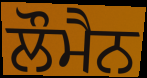
ਲੌਮੈਨ